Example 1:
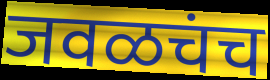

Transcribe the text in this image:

जवळचंच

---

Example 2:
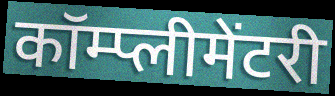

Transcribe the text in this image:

कॉम्प्लीमेंटरी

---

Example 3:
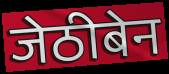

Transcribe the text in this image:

जेठीबेन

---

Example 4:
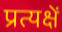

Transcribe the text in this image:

प्रत्यक्षें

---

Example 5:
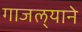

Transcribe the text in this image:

गाजल्याने